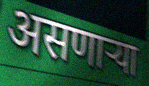
असणार्‍या